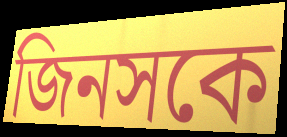
জিনসকে